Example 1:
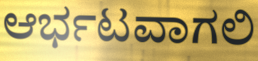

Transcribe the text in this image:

ಆರ್ಭಟವಾಗಲಿ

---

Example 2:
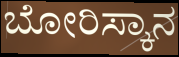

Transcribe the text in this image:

ಬೋರಿಸ್ಕಾನ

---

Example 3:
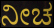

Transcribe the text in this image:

ನೀಚ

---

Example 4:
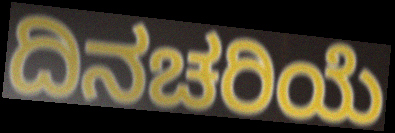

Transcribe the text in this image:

ದಿನಚರಿಯೆ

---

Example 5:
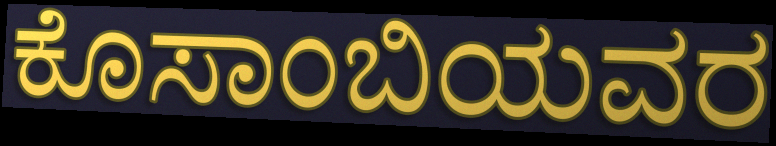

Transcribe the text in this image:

ಕೊಸಾಂಬಿಯವರ